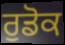
ਰੁਡੋਕ